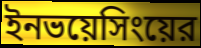
ইনভয়েসিংয়ের